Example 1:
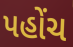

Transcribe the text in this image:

પહોંચ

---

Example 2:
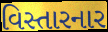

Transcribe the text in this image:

વિસ્તારનાર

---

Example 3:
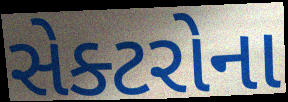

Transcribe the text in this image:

સેક્ટરોના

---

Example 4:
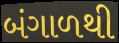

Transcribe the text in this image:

બંગાળથી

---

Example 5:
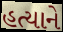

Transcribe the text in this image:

હત્યાને